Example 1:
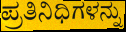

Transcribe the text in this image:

ಪ್ರತಿನಿಧಿಗಳನ್ನು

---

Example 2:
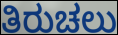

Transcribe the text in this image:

ತಿರುಚಲು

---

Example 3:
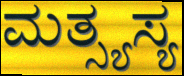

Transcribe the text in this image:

ಮತ್ಸ್ಯಸ್ಯ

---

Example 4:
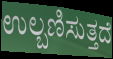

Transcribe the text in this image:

ಉಲ್ಬಣಿಸುತ್ತದೆ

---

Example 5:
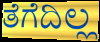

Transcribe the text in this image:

ತೆಗೆದಿಲ್ಲ